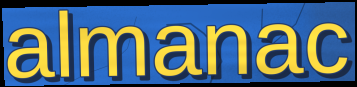
almanac